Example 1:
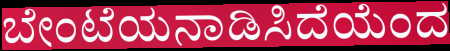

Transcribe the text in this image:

ಬೇಂಟೆಯನಾಡಿಸಿದೆಯೆಂದ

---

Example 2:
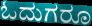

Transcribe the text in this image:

ಓದುಗರೂ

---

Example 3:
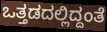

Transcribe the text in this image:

ಒತ್ತಡದಲ್ಲಿದ್ದಂತೆ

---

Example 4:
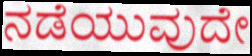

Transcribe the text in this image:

ನಡೆಯುವುದೇ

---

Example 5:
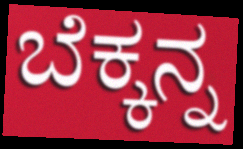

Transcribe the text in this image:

ಬೆಕ್ಕನ್ನ